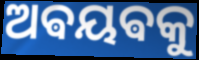
ଅଵୟଵକୁ